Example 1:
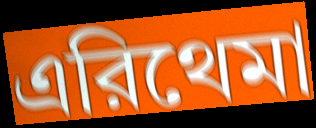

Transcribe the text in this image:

এরিথেমা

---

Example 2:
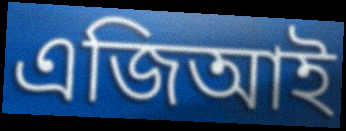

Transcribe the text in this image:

এজিআই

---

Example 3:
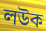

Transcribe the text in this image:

লউক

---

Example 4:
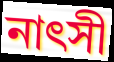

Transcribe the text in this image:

নাৎসী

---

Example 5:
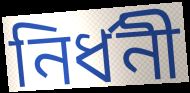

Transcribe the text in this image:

নির্ধনী